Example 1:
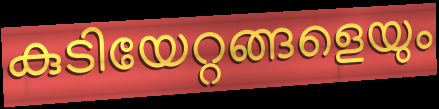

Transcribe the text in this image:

കുടിയേറ്റങ്ങളെയും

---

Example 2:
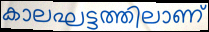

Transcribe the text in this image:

കാലഘട്ടത്തിലാണ്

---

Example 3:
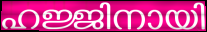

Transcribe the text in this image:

ഹജ്ജിനായി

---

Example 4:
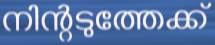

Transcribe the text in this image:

നിന്റടുത്തേക്ക്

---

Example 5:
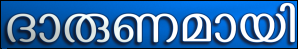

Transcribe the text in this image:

ദാരുണമായി